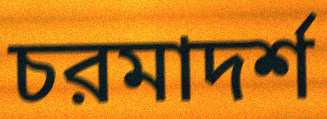
চরমাদর্শ